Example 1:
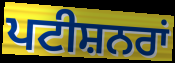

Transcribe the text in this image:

ਪਟੀਸ਼ਨਰਾਂ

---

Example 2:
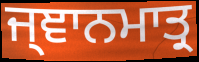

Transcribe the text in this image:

ਜ੍ਞਾਨਮਾਤ੍ਰ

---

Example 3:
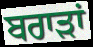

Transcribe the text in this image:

ਬਰਾੜਾਂ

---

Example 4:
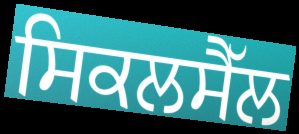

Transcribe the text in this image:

ਸਿਕਲਸੈੱਲ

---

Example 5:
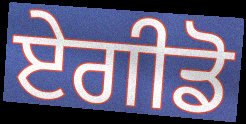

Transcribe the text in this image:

ਏਗੀਡੋ